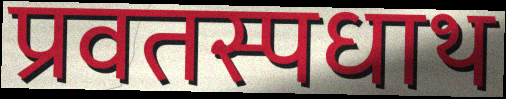
प्रवतस्पधाथ